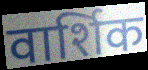
वार्शिक